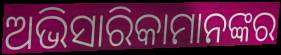
ଅଭିସାରିକାମାନଙ୍କର